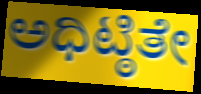
ಅಧಿಟ್ಠಿತೇ